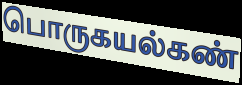
பொருகயல்கண்